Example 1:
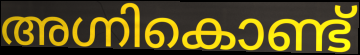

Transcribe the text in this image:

അഗ്നികൊണ്ട്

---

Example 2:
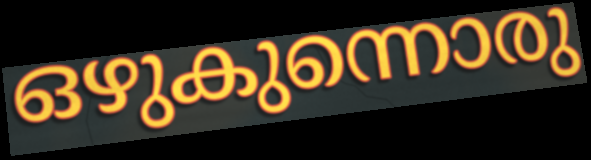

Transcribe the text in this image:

ഒഴുകുന്നൊരു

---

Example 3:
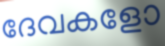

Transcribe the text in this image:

ദേവകളോ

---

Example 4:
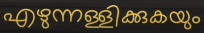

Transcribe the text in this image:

എഴുന്നള്ളിക്കുകയും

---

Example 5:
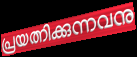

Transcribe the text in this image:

പ്രയത്നിക്കുന്നവനു